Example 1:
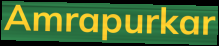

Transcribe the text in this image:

Amrapurkar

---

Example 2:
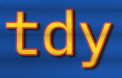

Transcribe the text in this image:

tdy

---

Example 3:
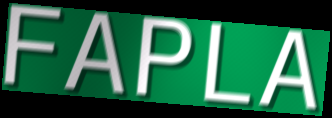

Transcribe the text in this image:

FAPLA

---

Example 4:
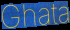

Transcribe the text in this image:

Ghata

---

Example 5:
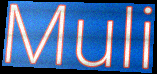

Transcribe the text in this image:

Muli